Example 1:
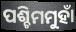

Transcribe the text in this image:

ପଶ୍ଚିମମୁହାଁ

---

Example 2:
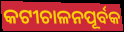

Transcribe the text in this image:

କଟୀଚାଳନପୂର୍ବକ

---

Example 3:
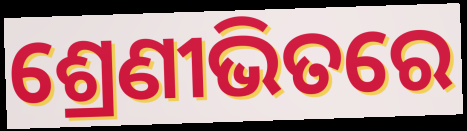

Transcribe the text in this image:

ଶ୍ରେଣୀଭିତରେ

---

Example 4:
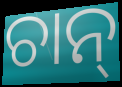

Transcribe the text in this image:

ଚାନ୍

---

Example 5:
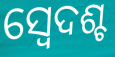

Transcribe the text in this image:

ସ୍ବେଦଶ୍ଚ